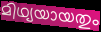
മിഥ്യയായതും